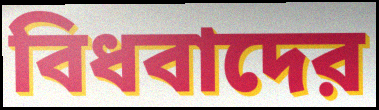
বিধবাদের